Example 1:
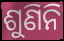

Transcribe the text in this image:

ଶୁଣିନି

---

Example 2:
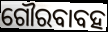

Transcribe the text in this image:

ଗୌରବାବହ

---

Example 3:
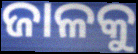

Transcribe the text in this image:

ଜାଳକୁ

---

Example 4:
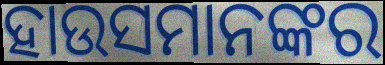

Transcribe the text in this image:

ହାଉସମାନଙ୍କର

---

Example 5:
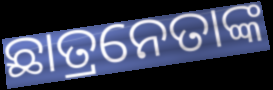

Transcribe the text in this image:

ଛାତ୍ରନେତାଙ୍କ